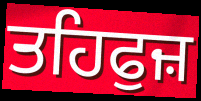
ਤਹਿਫੁਜ਼